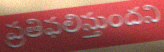
ప్రతిఫలిస్తుందని